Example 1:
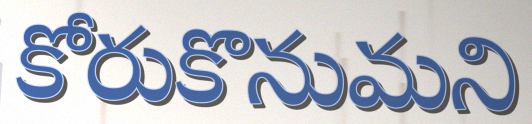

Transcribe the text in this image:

కోరుకొనుమని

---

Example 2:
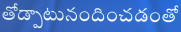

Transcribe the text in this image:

తోడ్పాటునందించడంతో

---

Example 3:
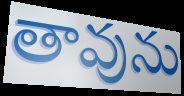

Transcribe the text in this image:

తావును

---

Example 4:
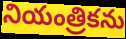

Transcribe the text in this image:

నియంత్రికను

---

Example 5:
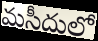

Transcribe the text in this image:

మసీదులో